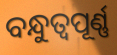
ବନ୍ଧୁତ୍ଵପୂର୍ଣ୍ଣ